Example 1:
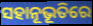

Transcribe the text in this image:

ସହାନୂଭୂତିରେ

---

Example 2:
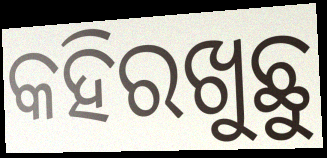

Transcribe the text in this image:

କହିରଖୁଛୁ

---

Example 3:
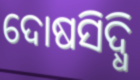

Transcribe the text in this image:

ଦୋଷସିଦ୍ଧି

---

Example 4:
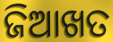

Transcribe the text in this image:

ଜିଆଖତ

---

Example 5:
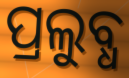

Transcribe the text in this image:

ପ୍ରଲୁବ୍ଧ